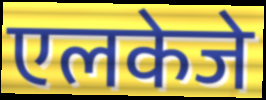
एलकेजे